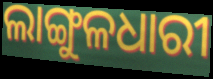
ଲାଙ୍ଗୁଳଧାରୀ